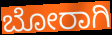
ಬೋರಾಗಿ